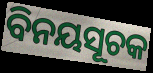
ବିନୟସୂଚକ